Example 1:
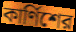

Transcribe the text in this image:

কার্ণিশের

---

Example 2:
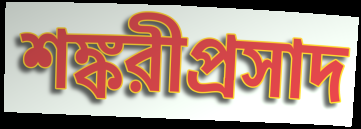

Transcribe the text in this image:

শঙ্করীপ্রসাদ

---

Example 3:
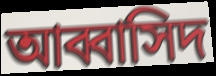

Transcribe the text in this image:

আব্বাসিদ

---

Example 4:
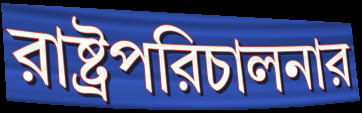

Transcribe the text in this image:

রাষ্ট্রপরিচালনার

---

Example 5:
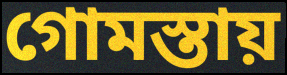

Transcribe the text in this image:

গোমস্তায়